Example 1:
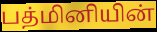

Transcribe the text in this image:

பத்மினியின்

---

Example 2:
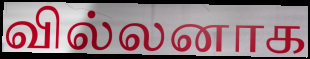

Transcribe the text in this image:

வில்லனாக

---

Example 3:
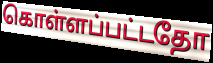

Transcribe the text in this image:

கொள்ளப்பட்டதோ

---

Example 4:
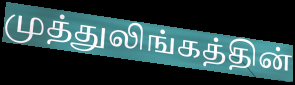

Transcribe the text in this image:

முத்துலிங்கத்தின்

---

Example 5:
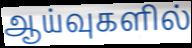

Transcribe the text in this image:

ஆய்வுகளில்